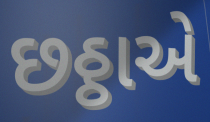
છઠ્ઠાએ